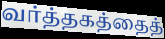
வர்த்தகத்தைத்